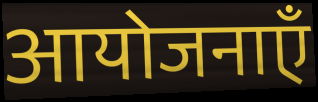
आयोजनाएँ